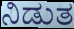
ನಿಡುತ